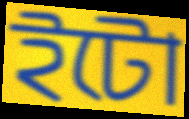
ইটো